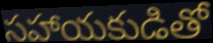
సహాయకుడితో